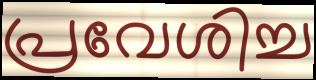
പ്രവേശിച്ച